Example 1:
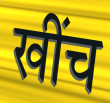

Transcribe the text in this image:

खींच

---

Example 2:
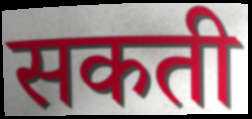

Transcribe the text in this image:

सकती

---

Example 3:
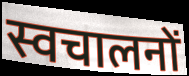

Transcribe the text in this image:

स्वचालनों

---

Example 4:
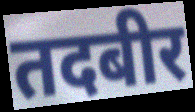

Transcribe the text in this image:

तदबीर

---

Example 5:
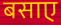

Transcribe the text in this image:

बसाए